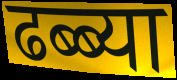
ढब्ब्या